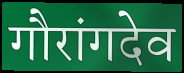
गौरांगदेव